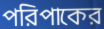
পরিপাকের